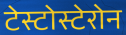
टेस्‍टोस्‍टेरोन